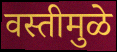
वस्तीमुळे